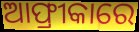
ଆଫ୍ରୀକାରେ